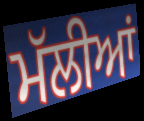
ਮੱਲੀਆਂ